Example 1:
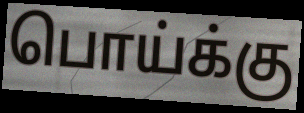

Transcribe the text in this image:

பொய்க்கு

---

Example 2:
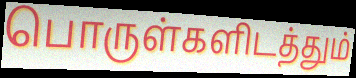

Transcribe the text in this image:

பொருள்களிடத்தும்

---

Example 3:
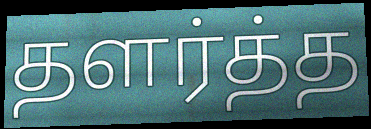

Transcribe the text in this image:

தளர்த்த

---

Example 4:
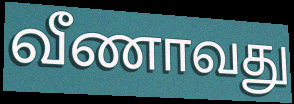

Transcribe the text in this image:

வீணாவது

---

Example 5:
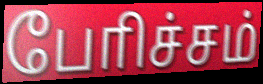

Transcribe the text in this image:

பேரிச்சம்